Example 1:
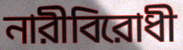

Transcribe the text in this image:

নারীবিরোধী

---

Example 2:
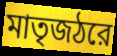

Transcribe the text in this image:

মাতৃজঠরে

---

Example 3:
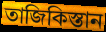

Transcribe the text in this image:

তাজিকিস্তান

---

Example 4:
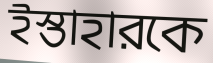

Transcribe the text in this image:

ইস্তাহারকে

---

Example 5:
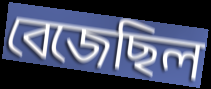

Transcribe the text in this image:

বেজেছিল